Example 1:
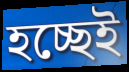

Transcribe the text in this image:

হচ্ছেই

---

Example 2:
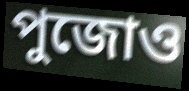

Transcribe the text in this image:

পুজোও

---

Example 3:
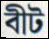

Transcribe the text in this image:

বীট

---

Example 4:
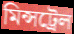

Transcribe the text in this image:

মিন্সট্রেল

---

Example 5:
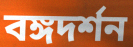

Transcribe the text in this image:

বঙ্গদর্শন